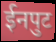
ईनपुट